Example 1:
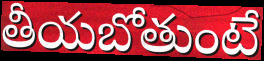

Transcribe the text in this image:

తీయబోతుంటే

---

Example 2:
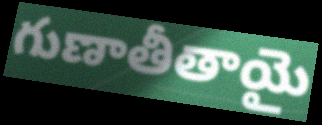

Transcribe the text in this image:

గుణాతీతాయై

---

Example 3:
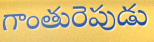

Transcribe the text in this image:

గాంతురెపుడు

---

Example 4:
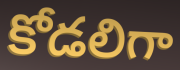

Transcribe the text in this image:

కోడలిగా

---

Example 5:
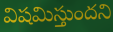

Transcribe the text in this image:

విషమిస్తుందని